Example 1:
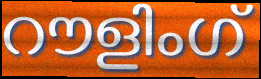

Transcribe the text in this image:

റൗളിംഗ്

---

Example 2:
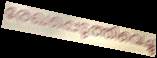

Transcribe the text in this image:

രേഖപ്പെടുത്തിവെച്ചു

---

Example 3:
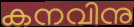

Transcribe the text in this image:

കനവിനു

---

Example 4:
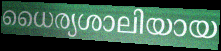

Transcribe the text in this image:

ധൈര്യശാലിയായ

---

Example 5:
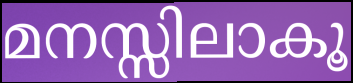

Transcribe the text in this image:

മനസ്സിലാകൂ